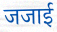
जजाई